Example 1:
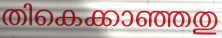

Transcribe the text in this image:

തികെക്കാഞ്ഞതു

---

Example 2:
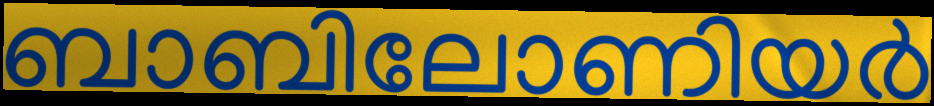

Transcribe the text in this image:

ബാബിലോണിയർ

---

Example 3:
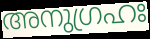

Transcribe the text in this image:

അനുഗ്രഹഃ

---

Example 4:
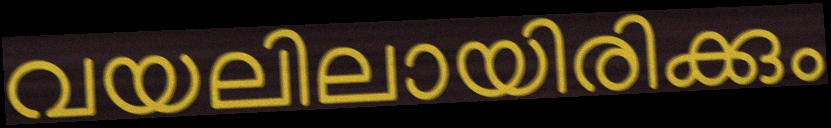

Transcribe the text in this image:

വയലിലായിരിക്കും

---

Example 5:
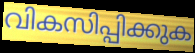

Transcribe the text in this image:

വികസിപ്പിക്കുക